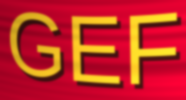
GEF